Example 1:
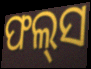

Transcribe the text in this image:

ଫଲ୍‍ସ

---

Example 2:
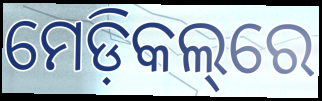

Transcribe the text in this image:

ମେଡ଼ିକଲ୍‌ରେ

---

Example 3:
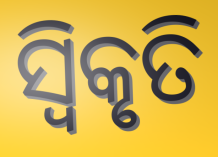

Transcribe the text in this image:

ସ୍ୱିକୃତି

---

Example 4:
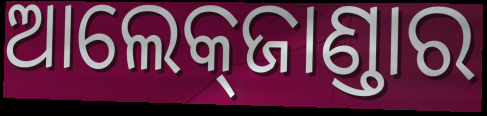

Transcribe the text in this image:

ଆଲେକ୍‌ଜାଣ୍ଡାର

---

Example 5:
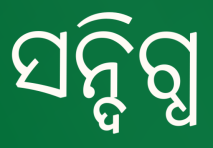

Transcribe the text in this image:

ସନ୍ଦିଗ୍ଧ